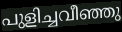
പുളിച്ചവീഞ്ഞു